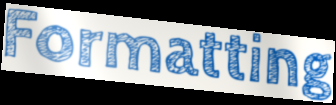
Formatting